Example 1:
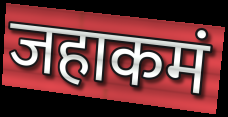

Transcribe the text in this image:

जहाकमं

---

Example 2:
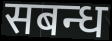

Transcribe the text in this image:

सबन्ध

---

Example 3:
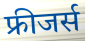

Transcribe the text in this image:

फ्रीजर्स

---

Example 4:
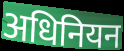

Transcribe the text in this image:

अधिनियन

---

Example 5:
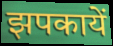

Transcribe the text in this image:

झपकायें